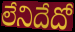
లేనిదేదో